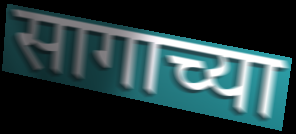
सागाच्या